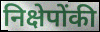
निक्षेपोंकी